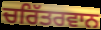
ਚਰਿੱਤਰਵਾਨ